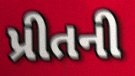
પ્રીતની